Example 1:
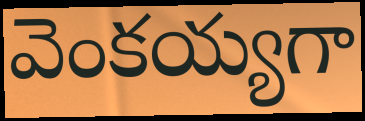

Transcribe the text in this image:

వెంకయ్యగా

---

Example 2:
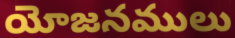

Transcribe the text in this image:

యోజనములు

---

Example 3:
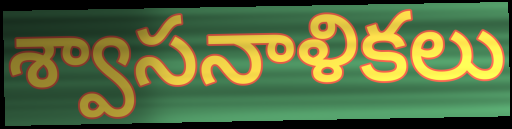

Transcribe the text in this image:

శ్వాసనాళికలు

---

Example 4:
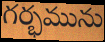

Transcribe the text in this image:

గర్భమును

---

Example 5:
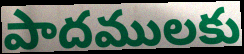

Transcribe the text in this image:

పాదములకు